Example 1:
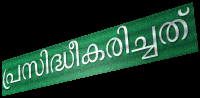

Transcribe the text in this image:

പ്രസിദ്ധീകരിച്ചത്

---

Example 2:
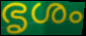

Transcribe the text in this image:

ഭൃശം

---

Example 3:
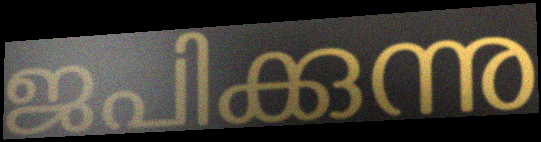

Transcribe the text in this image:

ജപിക്കുന്നു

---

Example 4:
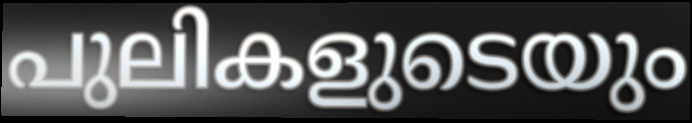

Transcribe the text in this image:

പുലികളുടെയും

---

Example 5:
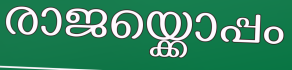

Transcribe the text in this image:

രാജയ്ക്കൊപ്പം